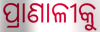
ପ୍ରାଣାଳୀକୁ